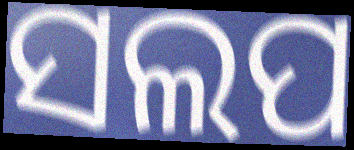
ସଲପ